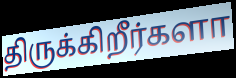
திருக்கிறீர்களா